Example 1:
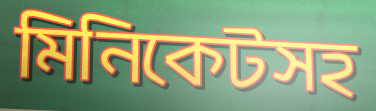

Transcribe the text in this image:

মিনিকেটসহ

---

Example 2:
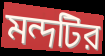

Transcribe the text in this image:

মন্দটির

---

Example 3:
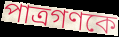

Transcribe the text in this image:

পাত্রগণকে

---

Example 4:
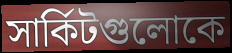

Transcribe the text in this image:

সার্কিটগুলোকে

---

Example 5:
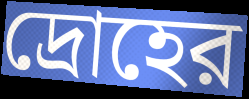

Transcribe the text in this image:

দ্রোহের